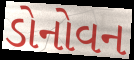
ડોનોવન